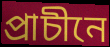
প্ৰাচীনে